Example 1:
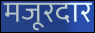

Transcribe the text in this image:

मजूरदार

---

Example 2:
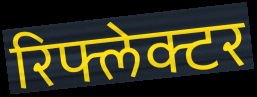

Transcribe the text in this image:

रिफ्लेक्टर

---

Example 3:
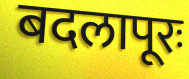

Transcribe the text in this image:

बदलापूरः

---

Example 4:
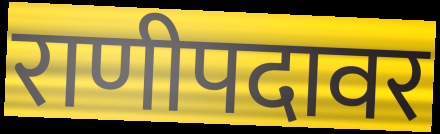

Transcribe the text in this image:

राणीपदावर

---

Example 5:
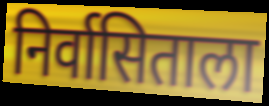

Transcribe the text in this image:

निर्वासिताला